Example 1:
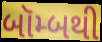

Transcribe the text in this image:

બૉમ્બથી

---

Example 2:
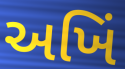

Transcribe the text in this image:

અખિં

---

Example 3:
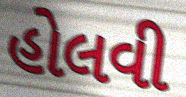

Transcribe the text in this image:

હોલવી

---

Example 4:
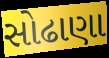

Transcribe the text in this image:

સોઢાણા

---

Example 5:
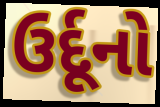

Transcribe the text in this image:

ઉર્દૂનો